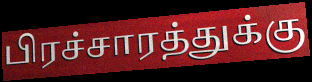
பிரச்சாரத்துக்கு